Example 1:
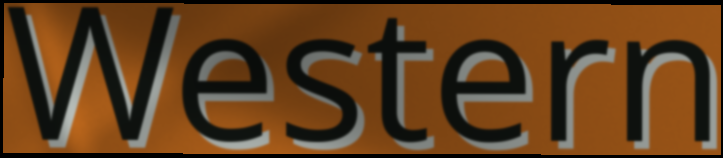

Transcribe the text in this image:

Western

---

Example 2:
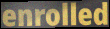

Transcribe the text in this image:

enrolled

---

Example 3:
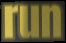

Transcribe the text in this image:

run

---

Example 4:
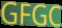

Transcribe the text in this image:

GFGC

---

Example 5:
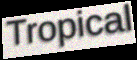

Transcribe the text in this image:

Tropical